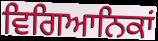
ਵਿਗਿਆਨਿਕਾਂ